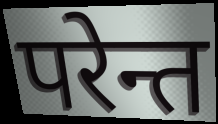
परेन्त